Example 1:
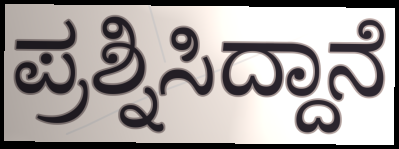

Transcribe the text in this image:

ಪ್ರಶ್ನಿಸಿದ್ದಾನೆ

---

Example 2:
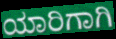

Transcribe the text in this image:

ಯಾರಿಗಾಗಿ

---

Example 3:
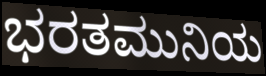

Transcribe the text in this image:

ಭರತಮುನಿಯ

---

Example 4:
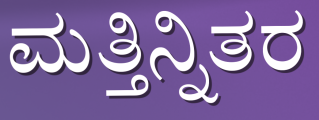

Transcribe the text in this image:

ಮತ್ತಿನ್ನಿತರ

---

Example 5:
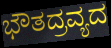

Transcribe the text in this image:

ಭೌತದ್ರವ್ಯದ